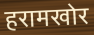
हरामखोर